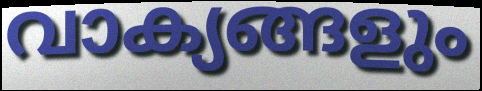
വാക്യങ്ങളും